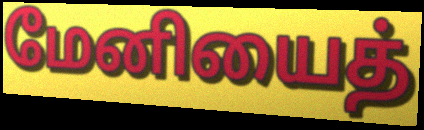
மேனியைத்